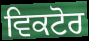
ਵਿਕਟੋਰ